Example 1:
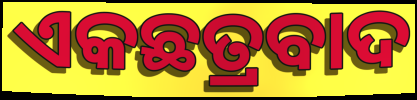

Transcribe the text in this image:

ଏକଛତ୍ରବାଦ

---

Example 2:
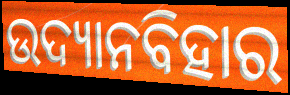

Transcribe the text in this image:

ଉଦ୍ୟାନବିହାର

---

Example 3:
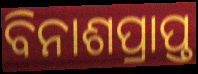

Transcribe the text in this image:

ବିନାଶପ୍ରାପ୍ତ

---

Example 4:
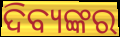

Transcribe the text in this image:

ଦିବ୍ୟଙ୍କର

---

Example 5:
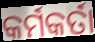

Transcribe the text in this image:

କର୍ମକର୍ତା